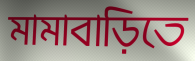
মামাবাড়িতে